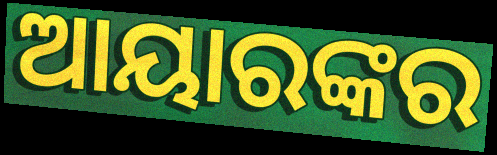
ଆୟାରଙ୍କର